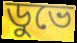
ডুভে